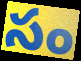
సం